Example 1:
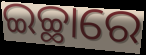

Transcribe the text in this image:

ଇଚ୍ଛାରେ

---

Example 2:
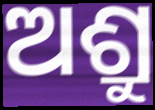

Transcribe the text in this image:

ଅଶ୍ରୁ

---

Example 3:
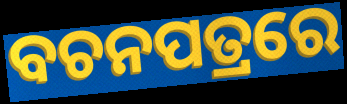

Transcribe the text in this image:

ବଚନପତ୍ରରେ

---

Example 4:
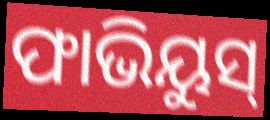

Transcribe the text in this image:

ଫାଭିୟୁସ୍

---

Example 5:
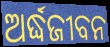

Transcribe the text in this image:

ଅର୍ଦ୍ଧଜୀବନ